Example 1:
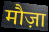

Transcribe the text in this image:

मौज़ा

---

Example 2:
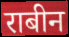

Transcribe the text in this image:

राबीन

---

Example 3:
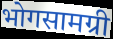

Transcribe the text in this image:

भोगसामग्री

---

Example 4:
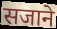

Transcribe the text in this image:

सजाने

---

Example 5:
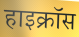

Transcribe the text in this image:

हाइक्रॉस